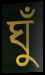
ঘুঁ